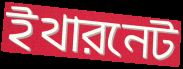
ইথারনেট